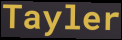
Tayler